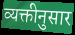
व्यक्तीनुसार